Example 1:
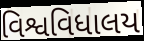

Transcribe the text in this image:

વિશ્વવિધાલય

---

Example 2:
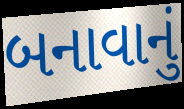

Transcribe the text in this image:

બનાવાનું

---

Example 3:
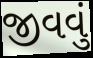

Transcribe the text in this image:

જીવવું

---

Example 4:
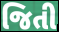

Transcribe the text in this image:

જિતી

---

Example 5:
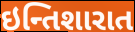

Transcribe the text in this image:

ઇન્તિશારાત